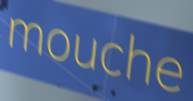
mouche